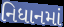
નિધાનમાં